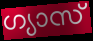
ഗ്യാസ്